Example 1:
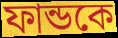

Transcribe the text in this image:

ফান্ডকে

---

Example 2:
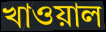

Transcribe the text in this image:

খাওয়াল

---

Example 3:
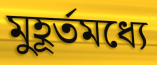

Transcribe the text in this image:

মুহূর্তমধ্যে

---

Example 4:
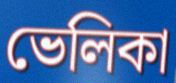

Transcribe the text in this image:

ভেলিকা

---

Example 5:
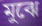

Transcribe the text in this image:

মুঝে